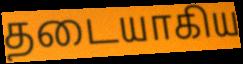
தடையாகிய